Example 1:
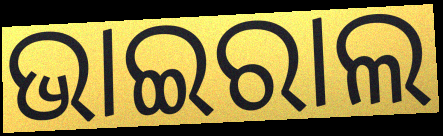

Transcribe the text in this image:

ଭାଇରାଲ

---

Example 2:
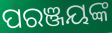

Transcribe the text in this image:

ପରଞ୍ଜୟଙ୍କ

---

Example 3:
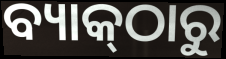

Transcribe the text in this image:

ବ୍ୟାକ୍‌ଠାରୁ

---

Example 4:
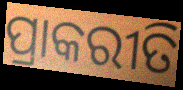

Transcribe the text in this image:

ପ୍ରାକରୀତି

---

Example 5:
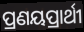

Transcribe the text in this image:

ପ୍ରଣୟପ୍ରାର୍ଥୀ